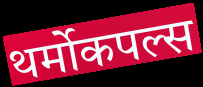
थर्मोकपल्स